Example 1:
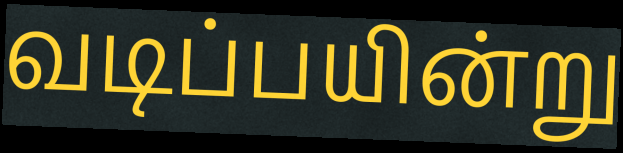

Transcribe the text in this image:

வடிப்பயின்று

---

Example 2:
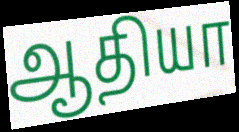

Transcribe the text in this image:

ஆதியா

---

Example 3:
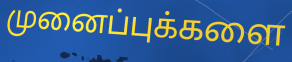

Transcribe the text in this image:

முனைப்புக்களை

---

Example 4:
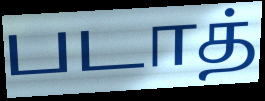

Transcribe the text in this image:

படாத்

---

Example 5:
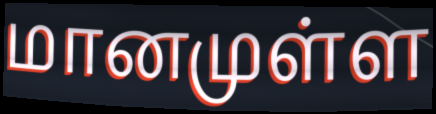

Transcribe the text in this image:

மானமுள்ள